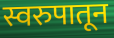
स्वरुपातून